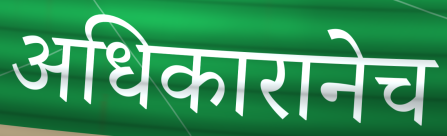
अधिकारानेच